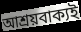
আশ্ৰয়বাক্যই